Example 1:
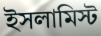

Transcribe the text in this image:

ইসলামিস্ট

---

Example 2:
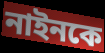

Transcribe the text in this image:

নাইনকে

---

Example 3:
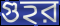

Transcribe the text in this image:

গুহর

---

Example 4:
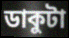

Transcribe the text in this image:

ডাকুটা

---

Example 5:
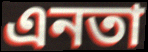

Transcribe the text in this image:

এনতা